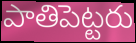
పాతిపెట్టరు